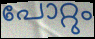
പോറ്റും